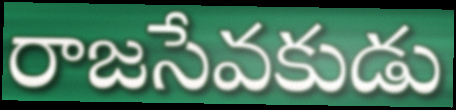
రాజసేవకుడు